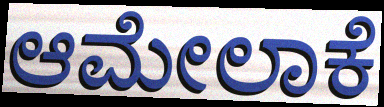
ಆಮೇಲಾಕೆ